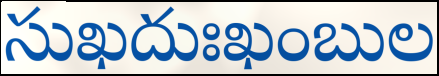
సుఖదుఃఖంబుల